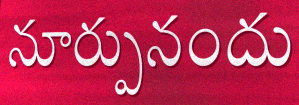
నూర్పునందు